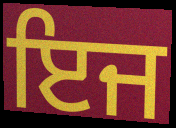
ਇਜ